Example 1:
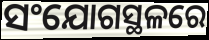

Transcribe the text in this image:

ସଂଯୋଗସ୍ଥଳରେ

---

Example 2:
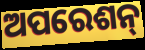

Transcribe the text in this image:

ଅପରେଶନ୍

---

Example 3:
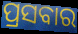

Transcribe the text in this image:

ପ୍ରସବାର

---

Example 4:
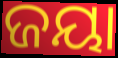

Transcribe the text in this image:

ଜୟା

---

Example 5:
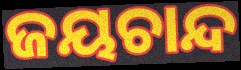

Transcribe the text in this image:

ଜୟଚାନ୍ଦ